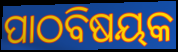
ପାଠବିଷୟକ